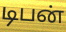
டிபன்